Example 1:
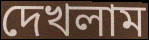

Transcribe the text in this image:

দেখলাম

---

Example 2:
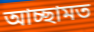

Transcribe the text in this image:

আচ্ছামত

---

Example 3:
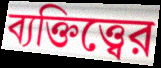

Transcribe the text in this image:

ব্যক্তিত্ত্বের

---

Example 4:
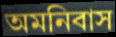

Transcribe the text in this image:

অমনিবাস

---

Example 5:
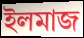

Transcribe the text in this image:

ইলমাজ